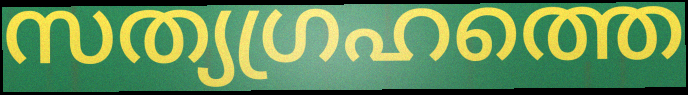
സത്യഗ്രഹത്തെ